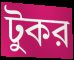
টুকর